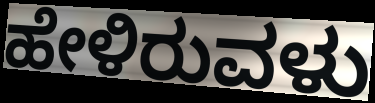
ಹೇಳಿರುವಳು